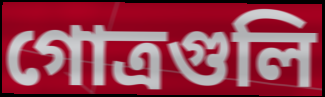
গোত্রগুলি